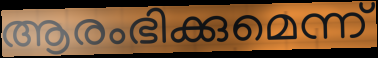
ആരംഭിക്കുമെന്ന്